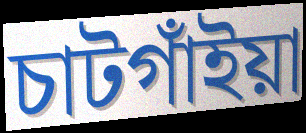
চাটগাঁইয়া